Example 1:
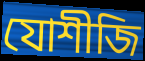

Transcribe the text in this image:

যোশীজি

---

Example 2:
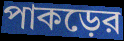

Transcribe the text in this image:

পাকড়ের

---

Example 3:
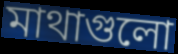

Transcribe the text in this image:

মাথাগুলো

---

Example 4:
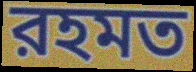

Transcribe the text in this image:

রহমত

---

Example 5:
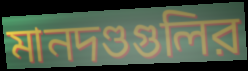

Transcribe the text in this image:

মানদণ্ডগুলির